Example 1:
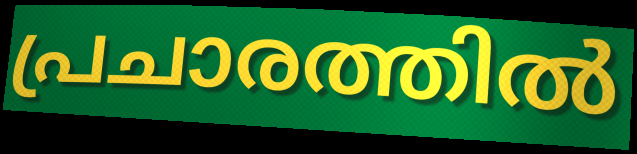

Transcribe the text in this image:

പ്രചാരത്തിൽ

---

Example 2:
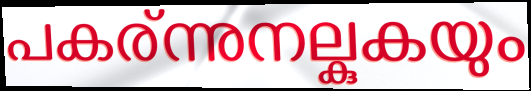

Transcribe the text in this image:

പകര്ന്നുനല്കുകയും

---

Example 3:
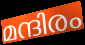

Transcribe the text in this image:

മന്ദിരം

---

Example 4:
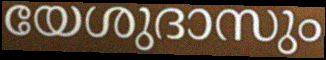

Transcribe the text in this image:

യേശുദാസും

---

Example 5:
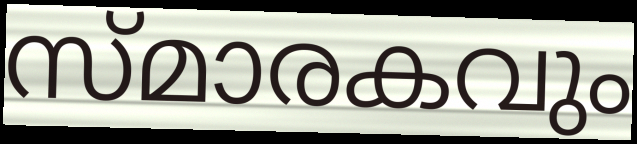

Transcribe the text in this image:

സ്മാരകവും